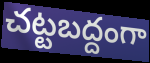
చట్టబద్దంగా